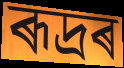
ৰূদ্ৰৰ